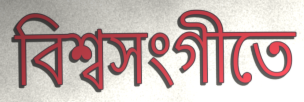
বিশ্বসংগীতে